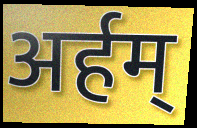
अर्हम्